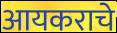
आयकराचे